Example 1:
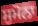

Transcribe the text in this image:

ਸੁਮੋਨਾ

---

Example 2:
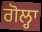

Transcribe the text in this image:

ਗੋਲ੍ਹਾ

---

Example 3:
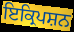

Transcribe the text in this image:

ਇਕ੍ਰਿਪਸ਼ਨ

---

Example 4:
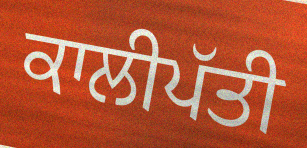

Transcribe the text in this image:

ਕਾਲੀਪੱਤੀ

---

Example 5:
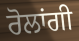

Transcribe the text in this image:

ਰੋਲਾਂਗੀ